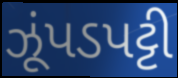
ઝૂંપડપટ્ટી